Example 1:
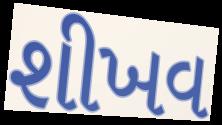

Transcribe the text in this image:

શીખવ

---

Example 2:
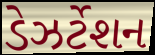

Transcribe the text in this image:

ડેઝર્ટેશન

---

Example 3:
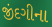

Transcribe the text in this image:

જીંદગીના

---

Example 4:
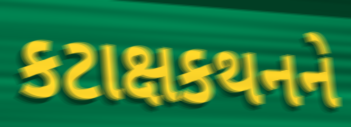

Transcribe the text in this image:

કટાક્ષકથનને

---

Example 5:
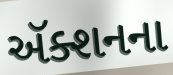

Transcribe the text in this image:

ઍક્શનના